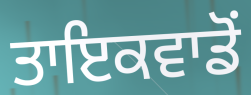
ਤਾਇਕਵਾਡੋਂ